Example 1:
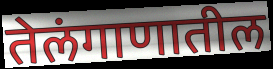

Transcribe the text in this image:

तेलंगाणातील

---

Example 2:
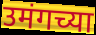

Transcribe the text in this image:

उमंगच्या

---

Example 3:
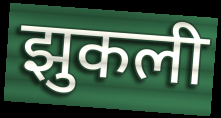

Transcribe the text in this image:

झुकली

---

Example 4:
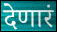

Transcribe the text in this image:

देणारं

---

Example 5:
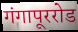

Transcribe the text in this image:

गंगापूररोड